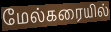
மேல்கரையில்